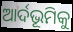
ଆର୍ଦଭୂମିକୁ